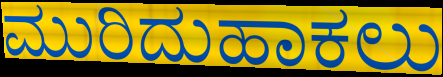
ಮುರಿದುಹಾಕಲು